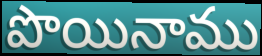
పొయినాము